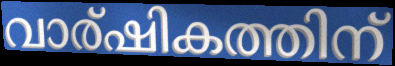
വാര്ഷികത്തിന്